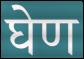
घेण